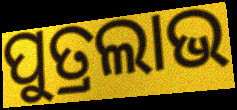
ପୁତ୍ରଲାଭ